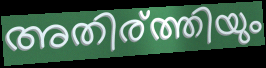
അതിര്ത്തിയും